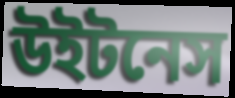
উইটনেস